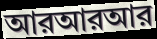
আরআরআর